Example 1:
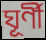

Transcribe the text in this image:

ঘূৰ্ণী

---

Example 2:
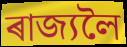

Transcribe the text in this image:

ৰাজ্যলৈ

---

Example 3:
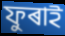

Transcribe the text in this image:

ফুৰাই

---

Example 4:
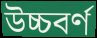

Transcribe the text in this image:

উচ্চবৰ্ণ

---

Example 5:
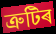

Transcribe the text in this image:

ত্ৰুটিৰ